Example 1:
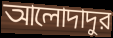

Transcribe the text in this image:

আলোদাদুর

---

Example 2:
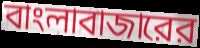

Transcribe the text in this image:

বাংলাবাজারের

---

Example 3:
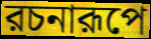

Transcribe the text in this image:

রচনারূপে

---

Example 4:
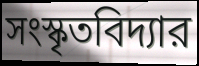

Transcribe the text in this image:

সংস্কৃতবিদ্যার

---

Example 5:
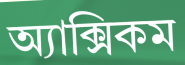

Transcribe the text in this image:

অ্যাক্সিকম